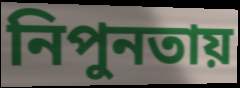
নিপুনতায়